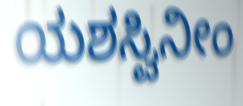
ಯಶಸ್ವಿನೀಂ